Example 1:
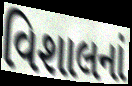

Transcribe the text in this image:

વિશાલનાં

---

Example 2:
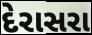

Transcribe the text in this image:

દેરાસરા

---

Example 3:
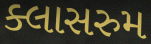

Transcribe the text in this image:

ક્લાસરુમ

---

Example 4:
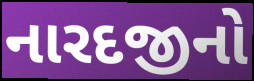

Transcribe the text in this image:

નારદજીનો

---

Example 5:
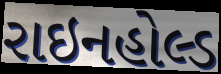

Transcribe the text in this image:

રાઇનહોલ્ડ